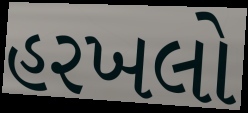
હરખલો